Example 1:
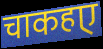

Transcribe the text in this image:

चाकहए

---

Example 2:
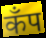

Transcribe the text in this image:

कॅंप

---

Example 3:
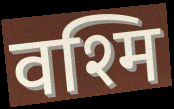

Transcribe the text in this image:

वश्मि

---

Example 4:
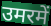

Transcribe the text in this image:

उमरमें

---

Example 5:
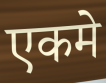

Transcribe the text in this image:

एकमे